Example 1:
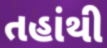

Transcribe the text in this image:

તહાંથી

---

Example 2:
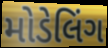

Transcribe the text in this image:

મોડેલિંગ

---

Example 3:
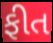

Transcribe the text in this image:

ફીત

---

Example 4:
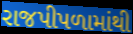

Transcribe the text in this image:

રાજપીપળામાંથી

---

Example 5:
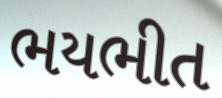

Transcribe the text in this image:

ભયભીત